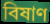
বিষাণ